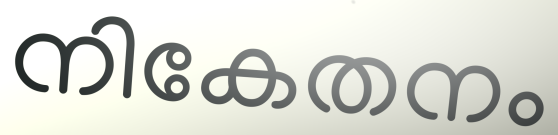
നികേതനം